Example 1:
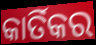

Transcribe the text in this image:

କାର୍ତିକର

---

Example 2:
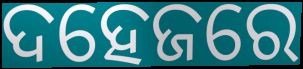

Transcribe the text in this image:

ଦହେଜରେ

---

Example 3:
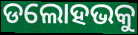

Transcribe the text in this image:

ଡଲୋହଭକୁ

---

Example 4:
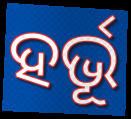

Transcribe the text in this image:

ହର୍ଭୂ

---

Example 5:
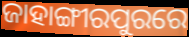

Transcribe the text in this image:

ଜାହାଙ୍ଗୀରପୁରରେ